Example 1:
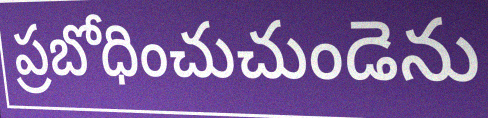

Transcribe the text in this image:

ప్రబోధించుచుండెను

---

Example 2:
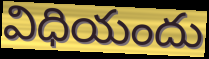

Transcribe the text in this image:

విధియందు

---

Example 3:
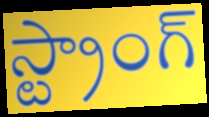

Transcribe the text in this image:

స్ట్రాంగ్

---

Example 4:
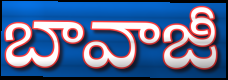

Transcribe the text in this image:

బావాజీ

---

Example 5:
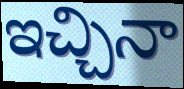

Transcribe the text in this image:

ఇచ్చినా